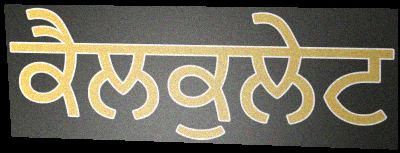
ਕੈਲਕੁਲੇਟ